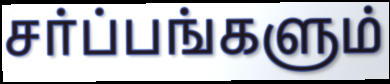
சர்ப்பங்களும்